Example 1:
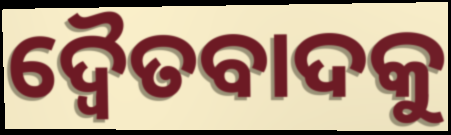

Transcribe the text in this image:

ଦ୍ୱୈତବାଦକୁ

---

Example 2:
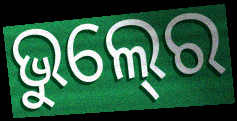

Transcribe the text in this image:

ଭୁଲ୍‍ରେ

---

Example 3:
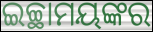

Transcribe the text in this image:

ଇଚ୍ଛାମୟଙ୍କର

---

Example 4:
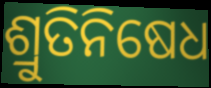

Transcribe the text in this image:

ଶ୍ରୁତିନିଷେଧ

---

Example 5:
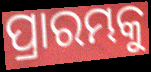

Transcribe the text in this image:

ପ୍ରାରମ୍ଭକୁ